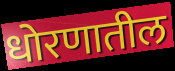
धोरणातील